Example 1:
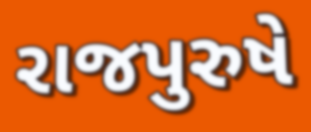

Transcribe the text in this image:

રાજપુરુષે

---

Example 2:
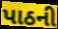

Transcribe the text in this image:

પાઠની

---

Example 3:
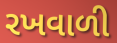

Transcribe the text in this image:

રખવાળી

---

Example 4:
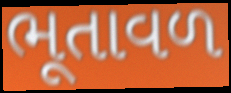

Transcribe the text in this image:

ભૂતાવળ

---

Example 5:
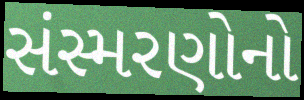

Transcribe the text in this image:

સંસ્મરણોનો